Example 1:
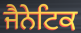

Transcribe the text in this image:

ਜੈਨੇਟਿਕ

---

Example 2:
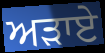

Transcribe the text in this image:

ਅੜਾਏ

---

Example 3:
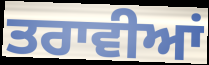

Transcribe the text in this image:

ਤਰਾਵੀਆਂ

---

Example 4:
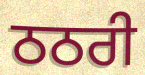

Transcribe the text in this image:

ਠਠਰੀ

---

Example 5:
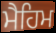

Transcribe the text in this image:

ਮੈਹਿਮ